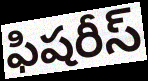
ఫిషరీస్